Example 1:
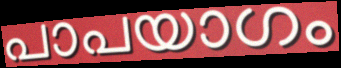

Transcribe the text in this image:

പാപയാഗം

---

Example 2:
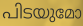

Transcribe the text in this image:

പിടയുമോ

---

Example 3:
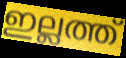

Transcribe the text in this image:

ഇല്ലത്ത്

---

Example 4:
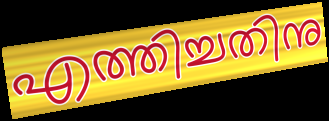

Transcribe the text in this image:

എത്തിച്ചതിനു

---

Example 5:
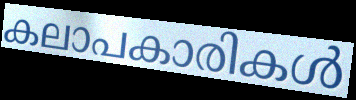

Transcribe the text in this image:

കലാപകാരികൾ